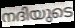
നദിയുടെ